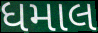
ધમાલ